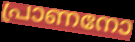
പ്രാണനോ